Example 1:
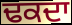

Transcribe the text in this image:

ਢਕਦਾ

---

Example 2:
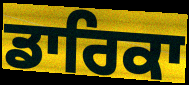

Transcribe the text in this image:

ਡਾਰਿਕਾ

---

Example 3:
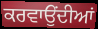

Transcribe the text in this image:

ਕਰਵਾਉਂਦੀਆਂ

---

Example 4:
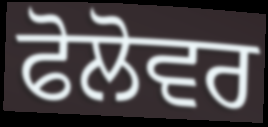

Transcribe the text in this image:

ਫੋਲੋਵਰ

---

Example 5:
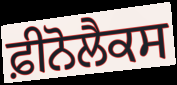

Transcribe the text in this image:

ਫ਼ੀਨੋਲੈਕਸ